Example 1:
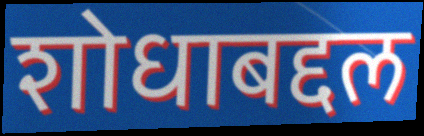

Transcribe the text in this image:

शोधाबद्दल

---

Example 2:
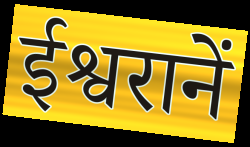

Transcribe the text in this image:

ईश्वरानें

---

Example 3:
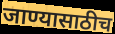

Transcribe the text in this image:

जाण्यासाठीच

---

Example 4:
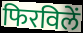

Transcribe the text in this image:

फिरविलें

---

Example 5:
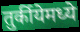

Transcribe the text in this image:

तुर्कीयेमध्ये